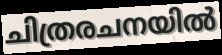
ചിത്രരചനയിൽ